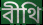
বীথি